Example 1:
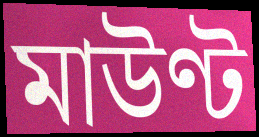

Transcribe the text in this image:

মাউণ্ট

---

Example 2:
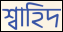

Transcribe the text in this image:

শ্বাহিদ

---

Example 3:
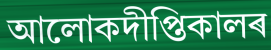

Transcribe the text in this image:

আলোকদীপ্তিকালৰ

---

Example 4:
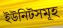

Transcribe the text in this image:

ইউনিটসমূহ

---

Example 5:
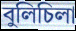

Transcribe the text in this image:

বুলিচিলা